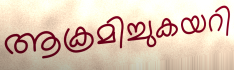
ആക്രമിച്ചുകയറി